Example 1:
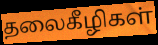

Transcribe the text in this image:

தலைகீழிகள்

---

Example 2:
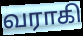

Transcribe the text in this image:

வராகி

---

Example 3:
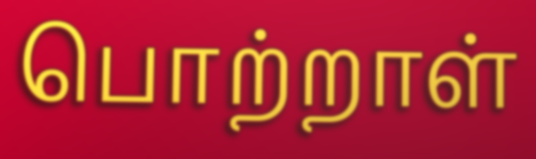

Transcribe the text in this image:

பொற்றாள்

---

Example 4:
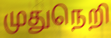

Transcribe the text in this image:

முதுநெறி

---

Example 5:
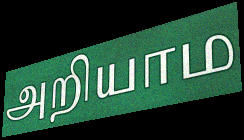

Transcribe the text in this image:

அறியாம